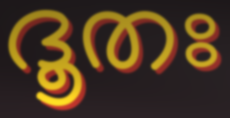
ദൂതഃ